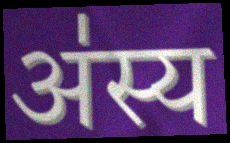
अ॑स्य